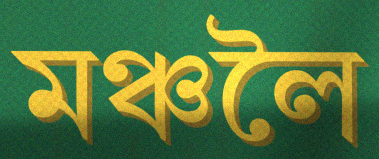
মঞ্চলৈ